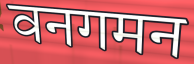
वनगमन